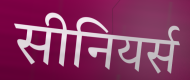
सीनियर्स